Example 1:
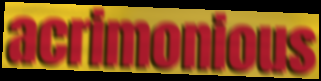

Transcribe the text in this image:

acrimonious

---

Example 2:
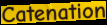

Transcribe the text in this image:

Catenation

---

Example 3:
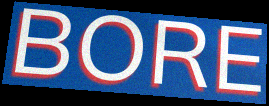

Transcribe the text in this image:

BORE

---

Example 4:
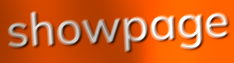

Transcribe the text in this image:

showpage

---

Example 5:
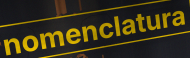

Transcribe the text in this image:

nomenclatura